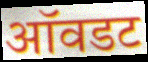
ऑवडट